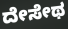
ದೇಸೇಥ